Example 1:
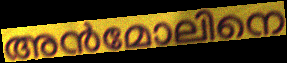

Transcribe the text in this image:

അൻമോലിനെ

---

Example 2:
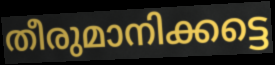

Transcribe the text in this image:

തീരുമാനിക്കട്ടെ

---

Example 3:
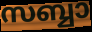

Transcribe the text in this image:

സബ്ബാ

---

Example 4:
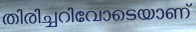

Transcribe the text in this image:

തിരിച്ചറിവോടെയാണ്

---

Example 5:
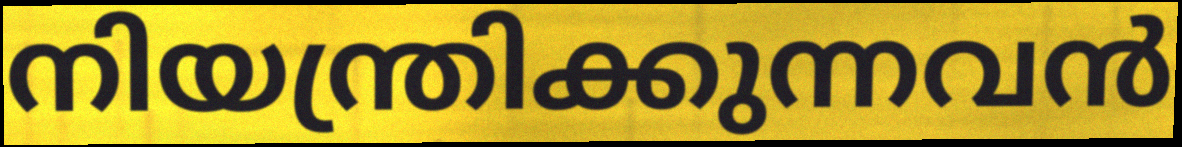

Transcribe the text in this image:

നിയന്ത്രിക്കുന്നവൻ